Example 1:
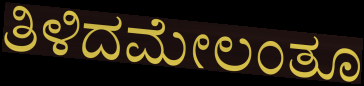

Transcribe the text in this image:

ತಿಳಿದಮೇಲಂತೂ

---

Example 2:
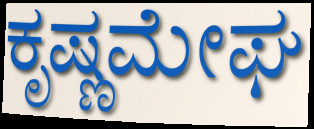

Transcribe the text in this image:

ಕೃಷ್ಣಮೇಘ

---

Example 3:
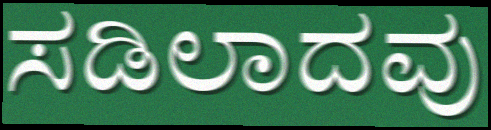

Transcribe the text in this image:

ಸಡಿಲಾದವು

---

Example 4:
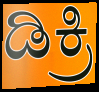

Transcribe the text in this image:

ಡಿಕ್ರಿ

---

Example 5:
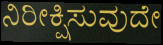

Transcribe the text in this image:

ನಿರೀಕ್ಷಿಸುವುದೇ